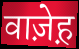
वाज़ेह़